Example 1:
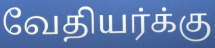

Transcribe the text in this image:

வேதியர்க்கு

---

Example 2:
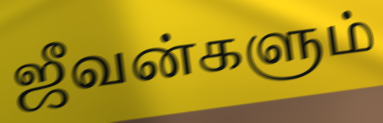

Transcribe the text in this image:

ஜீவன்களும்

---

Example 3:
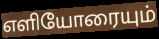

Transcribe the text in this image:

எளியோரையும்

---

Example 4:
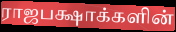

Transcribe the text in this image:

ராஜபக்ஷாக்களின்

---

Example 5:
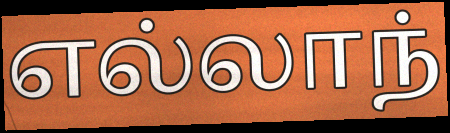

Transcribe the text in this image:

எல்லாந்